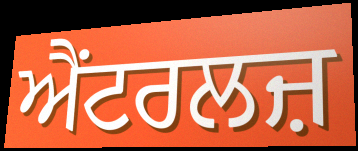
ਐਂਟਰਲਜ਼